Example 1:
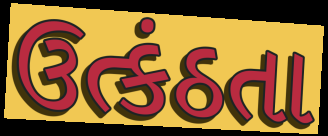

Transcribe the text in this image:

ઉત્કંઠતા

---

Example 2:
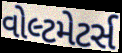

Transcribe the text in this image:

વોલ્ટમેટર્સ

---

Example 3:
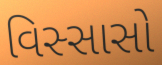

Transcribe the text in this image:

વિસ્સાસો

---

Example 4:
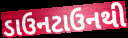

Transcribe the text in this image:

ડાઉનટાઉનથી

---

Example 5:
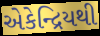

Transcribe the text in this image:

એકેન્દ્રિયથી